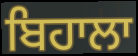
ਬਿਹਾਲਾ